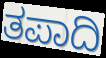
ತಪಾದಿ